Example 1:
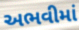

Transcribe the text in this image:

અભવીમાં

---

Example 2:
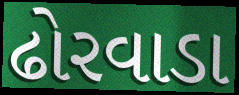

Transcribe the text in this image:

ઢોરવાડા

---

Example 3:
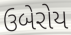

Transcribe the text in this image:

ઉબેરોય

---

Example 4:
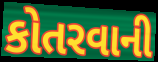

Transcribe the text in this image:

કોતરવાની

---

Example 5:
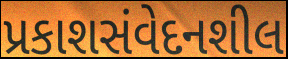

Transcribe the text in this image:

પ્રકાશસંવેદનશીલ